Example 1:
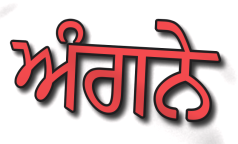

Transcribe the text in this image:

ਅੰਗਨੇ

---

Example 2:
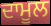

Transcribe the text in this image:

ਦਾਮੂਲ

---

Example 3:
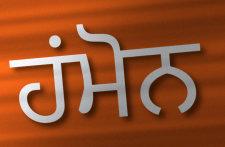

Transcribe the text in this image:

ਹਂਮੋਨ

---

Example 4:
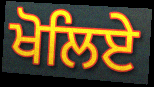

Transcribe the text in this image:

ਖੋਲਿਏ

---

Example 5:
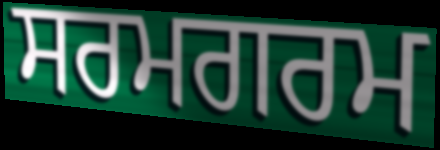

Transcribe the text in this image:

ਸਰਮਗਰਮ